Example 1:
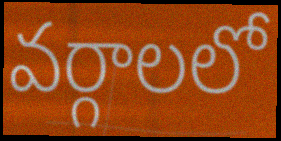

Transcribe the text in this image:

వర్గాలలో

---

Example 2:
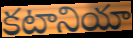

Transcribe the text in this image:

కటానియా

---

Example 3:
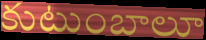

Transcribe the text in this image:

కుటుంబాలూ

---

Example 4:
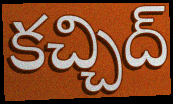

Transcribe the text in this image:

కచ్చిద్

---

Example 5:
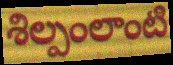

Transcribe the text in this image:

శిల్పంలాంటి